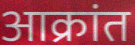
आक्रांत